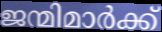
ജന്മിമാർക്ക്